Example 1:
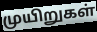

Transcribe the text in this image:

முயிறுகள்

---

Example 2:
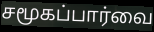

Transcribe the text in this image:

சமூகப்பார்வை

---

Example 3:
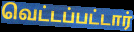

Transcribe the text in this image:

வெட்டப்பட்டார்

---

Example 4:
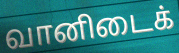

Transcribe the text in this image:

வானிடைக்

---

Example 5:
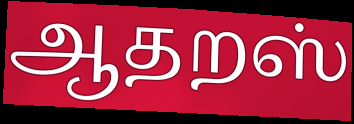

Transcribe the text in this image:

ஆதறஸ்